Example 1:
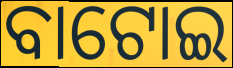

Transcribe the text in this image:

ବାଟୋଇ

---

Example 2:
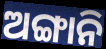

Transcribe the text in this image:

ଅଙ୍ଗାନି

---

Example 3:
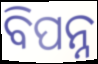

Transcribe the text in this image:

ବିପନ୍ନ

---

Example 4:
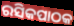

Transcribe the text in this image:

ରସିକପାଠକ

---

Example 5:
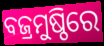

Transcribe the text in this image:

ବଜ୍ରମୁଷ୍ଠିରେ